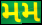
મમ